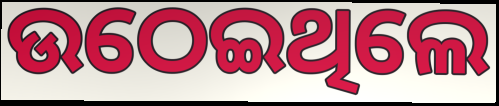
ଉଠେଇଥିଲେ